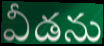
వీడను